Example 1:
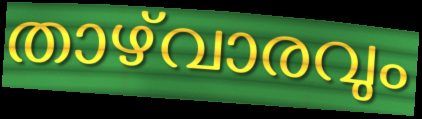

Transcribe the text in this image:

താഴ്‌വാരവും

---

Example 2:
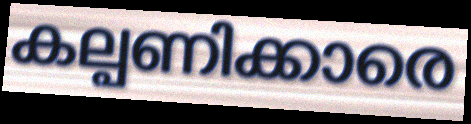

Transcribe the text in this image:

കല്പണിക്കാരെ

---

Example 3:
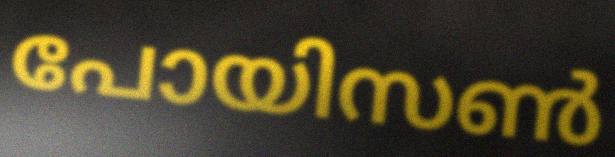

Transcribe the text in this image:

പോയിസൺ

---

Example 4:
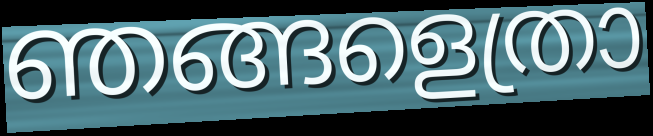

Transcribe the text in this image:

ഞങ്ങളെത്രാ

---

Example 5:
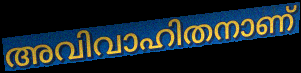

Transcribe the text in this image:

അവിവാഹിതനാണ്